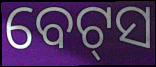
ବେଟ୍‌ସ